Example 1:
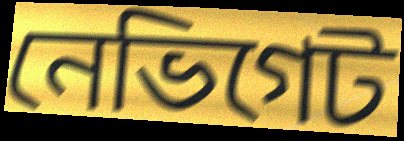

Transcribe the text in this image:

নেভিগেট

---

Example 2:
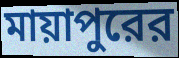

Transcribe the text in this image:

মায়াপুরের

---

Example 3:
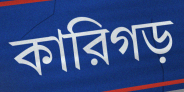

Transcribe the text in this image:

কারিগড়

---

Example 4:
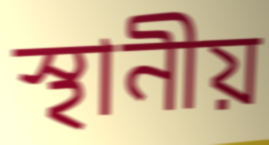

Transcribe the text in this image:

স্থানীয়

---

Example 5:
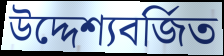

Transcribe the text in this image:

উদ্দেশ্যবর্জিত